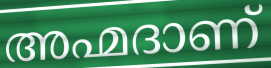
അഹ്മദാണ്